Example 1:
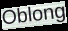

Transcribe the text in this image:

Oblong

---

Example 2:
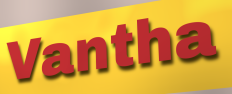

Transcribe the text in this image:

Vantha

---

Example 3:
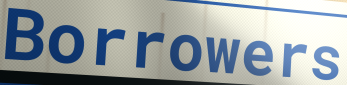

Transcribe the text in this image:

Borrowers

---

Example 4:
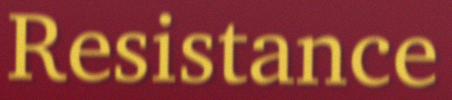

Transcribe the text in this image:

Resistance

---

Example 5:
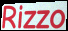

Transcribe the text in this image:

Rizzo